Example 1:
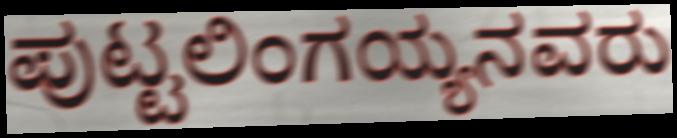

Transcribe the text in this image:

ಪುಟ್ಟಲಿಂಗಯ್ಯನವರು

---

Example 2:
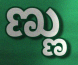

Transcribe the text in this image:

ಣ್ಣು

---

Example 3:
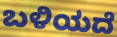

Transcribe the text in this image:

ಬಳಿಯದೆ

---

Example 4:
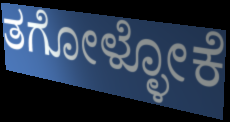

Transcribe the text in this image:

ತಗೋಳ್ಳೋಕೆ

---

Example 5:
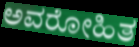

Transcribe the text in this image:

ಅವರೋಹಿತ